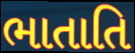
ભાતાતિ